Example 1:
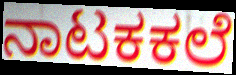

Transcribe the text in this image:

ನಾಟಕಕಲೆ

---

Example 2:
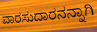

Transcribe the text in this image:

ವಾರಸುದಾರನನ್ನಾಗಿ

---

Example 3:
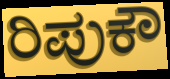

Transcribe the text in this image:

ರಿಪುಕೌ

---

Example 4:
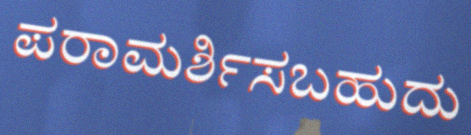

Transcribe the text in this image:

ಪರಾಮರ್ಶಿಸಬಹುದು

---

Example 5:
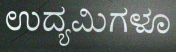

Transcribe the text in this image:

ಉದ್ಯಮಿಗಳೂ